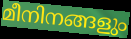
മീനിനങ്ങളും